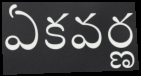
ఏకవర్ణ